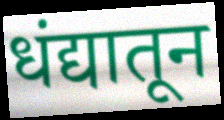
धंद्यातून